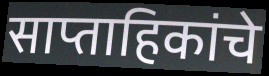
साप्ताहिकांचे